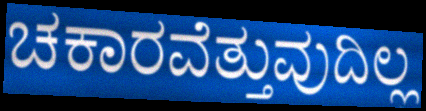
ಚಕಾರವೆತ್ತುವುದಿಲ್ಲ